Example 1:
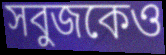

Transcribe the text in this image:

সবুজকেও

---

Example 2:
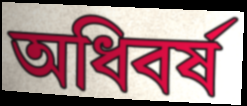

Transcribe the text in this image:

অধিবর্ষ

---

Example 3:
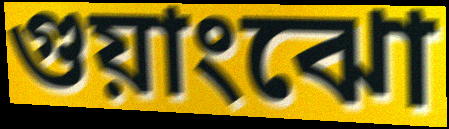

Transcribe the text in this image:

গুয়াংঝো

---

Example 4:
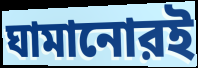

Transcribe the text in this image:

ঘামানোরই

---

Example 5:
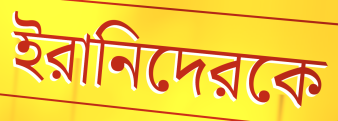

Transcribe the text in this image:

ইরানিদেরকে